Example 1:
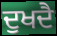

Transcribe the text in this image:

ਦੁਖਦੈ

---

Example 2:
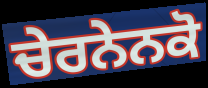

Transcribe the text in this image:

ਚੇਰਨੇਨਕੋ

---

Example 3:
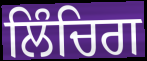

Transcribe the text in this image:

ਲਿੰਚਿਗ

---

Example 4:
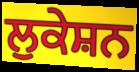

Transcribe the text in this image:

ਲੁਕੇਸ਼ਨ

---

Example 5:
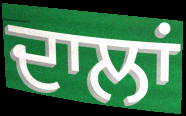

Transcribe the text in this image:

ਦਾਲਾਂ